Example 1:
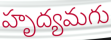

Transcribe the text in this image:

హృద్యమగు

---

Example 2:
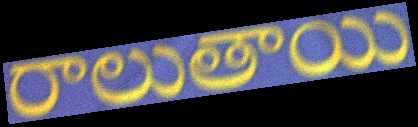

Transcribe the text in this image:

రాలుతాయి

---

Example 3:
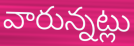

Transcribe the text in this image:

వారున్నట్లు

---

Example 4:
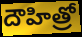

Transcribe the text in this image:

దౌహిత్రో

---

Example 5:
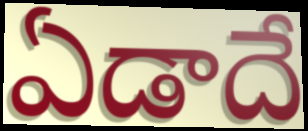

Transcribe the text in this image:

ఏడాదే